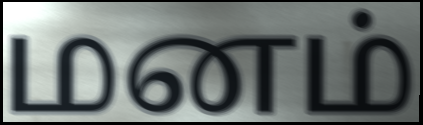
மனம்